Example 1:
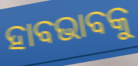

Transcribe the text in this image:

ହାବଭାବକୁ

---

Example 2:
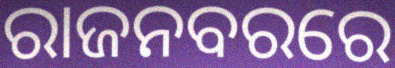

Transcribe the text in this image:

ରାଜନବରରେ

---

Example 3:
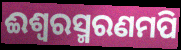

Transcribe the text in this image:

ଈଶ୍ଵରସ୍ମରଣମପି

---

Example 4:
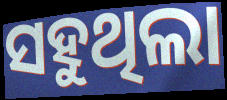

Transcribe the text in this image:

ସହୁଥିଲା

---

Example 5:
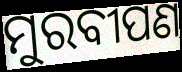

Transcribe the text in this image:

ମୁରବୀପଣ